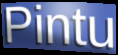
Pintu